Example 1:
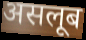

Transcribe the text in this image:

असलूब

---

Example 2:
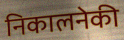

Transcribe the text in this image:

निकालनेकी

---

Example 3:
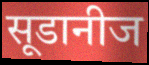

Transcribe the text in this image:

सूडानीज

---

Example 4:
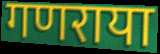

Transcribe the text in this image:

गणराया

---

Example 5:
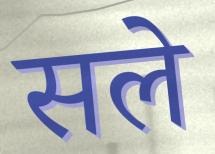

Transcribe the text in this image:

सले